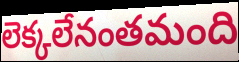
లెక్కలేనంతమంది